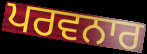
ਪਰਵਨਾਰ